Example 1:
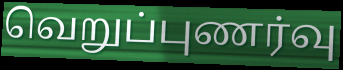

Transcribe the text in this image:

வெறுப்புணர்வு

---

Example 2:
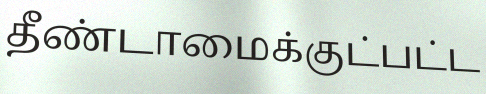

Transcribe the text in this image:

தீண்டாமைக்குட்பட்ட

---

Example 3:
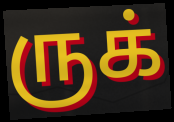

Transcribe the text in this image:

ருக்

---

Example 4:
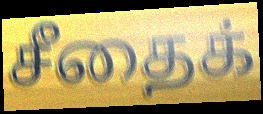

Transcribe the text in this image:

சீதைக்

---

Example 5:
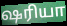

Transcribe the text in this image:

ஷரியா